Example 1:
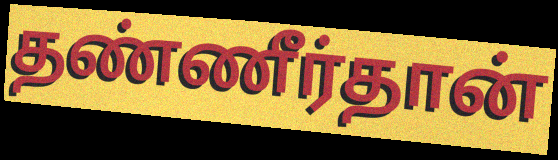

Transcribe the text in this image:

தண்ணீர்தான்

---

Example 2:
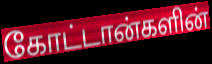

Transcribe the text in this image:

கோட்டான்களின்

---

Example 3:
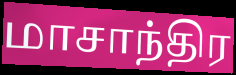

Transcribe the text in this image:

மாசாந்திர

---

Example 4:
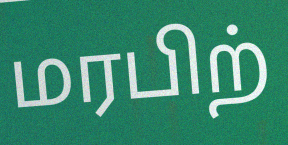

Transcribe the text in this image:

மரபிற்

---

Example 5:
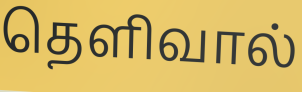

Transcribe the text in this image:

தெளிவால்